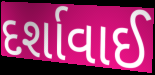
દર્શાવાઈ